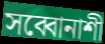
সব্বোনাশী